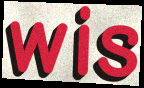
wis